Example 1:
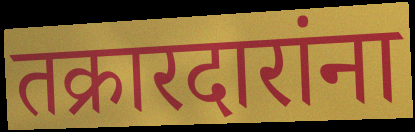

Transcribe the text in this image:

तक्रारदारांना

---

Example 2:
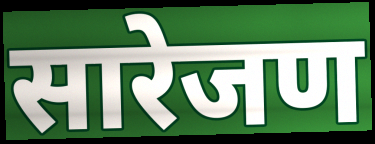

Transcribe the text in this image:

सारेजण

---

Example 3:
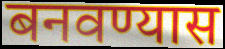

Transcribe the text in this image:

बनवण्यास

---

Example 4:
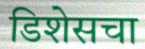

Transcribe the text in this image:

डिशेसचा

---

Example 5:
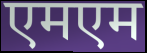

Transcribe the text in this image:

एमएम